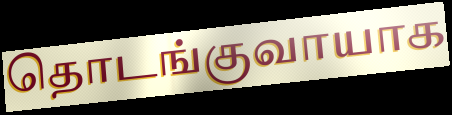
தொடங்குவாயாக